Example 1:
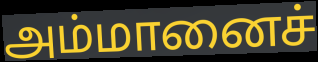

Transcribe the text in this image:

அம்மானைச்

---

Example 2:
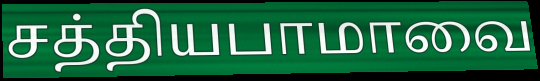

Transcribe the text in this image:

சத்தியபாமாவை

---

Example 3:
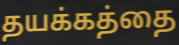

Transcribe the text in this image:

தயக்கத்தை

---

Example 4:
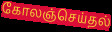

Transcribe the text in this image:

கோலஞ்செய்தல்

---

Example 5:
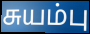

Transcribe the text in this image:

சுயம்பு